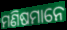
ମଣିଷମାନେ